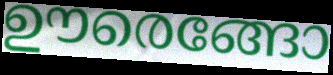
ഊരെങ്ങോ